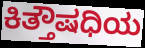
ಕಿತ್ತೌಷಧಿಯ